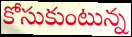
కోసుకుంటున్న